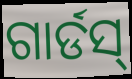
ଗାର୍ଡସ୍